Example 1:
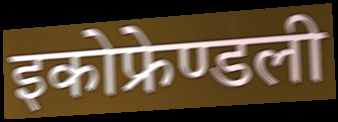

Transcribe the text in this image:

इकोफ्रेण्डली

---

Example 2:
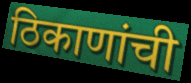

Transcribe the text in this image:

ठिकाणांची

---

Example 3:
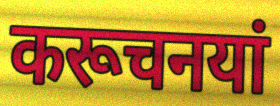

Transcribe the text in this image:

करूचनयां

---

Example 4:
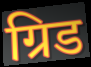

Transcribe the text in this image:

ग्रिड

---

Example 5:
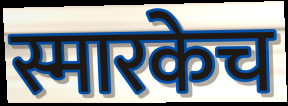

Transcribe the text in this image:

स्मारकेच